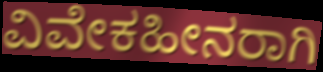
ವಿವೇಕಹೀನರಾಗಿ